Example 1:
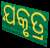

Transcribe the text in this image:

ଯକୃତ୍ର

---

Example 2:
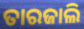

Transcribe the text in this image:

ତାରଜାଲି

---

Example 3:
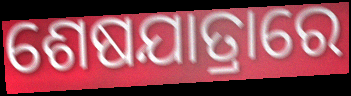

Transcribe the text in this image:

ଶେଷଯାତ୍ରାରେ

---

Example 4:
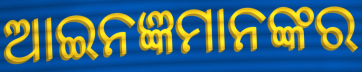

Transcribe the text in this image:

ଆଇନଜ୍ଞମାନଙ୍କର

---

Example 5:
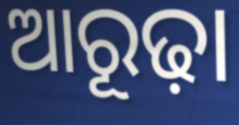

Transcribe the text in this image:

ଆରୂଢ଼ା